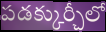
పడక్కుర్చీలో